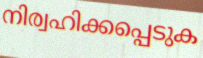
നിര്വഹിക്കപ്പെടുക